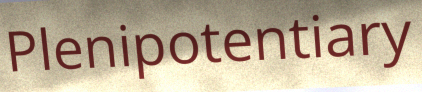
Plenipotentiary